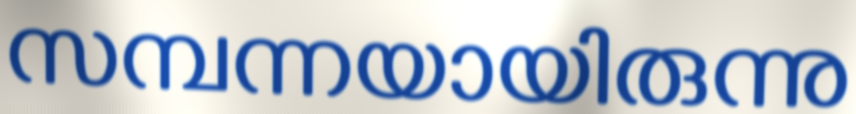
സമ്പന്നയായിരുന്നു